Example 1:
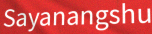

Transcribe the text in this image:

Sayanangshu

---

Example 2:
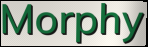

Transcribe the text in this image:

Morphy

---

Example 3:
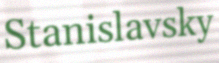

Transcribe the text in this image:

Stanislavsky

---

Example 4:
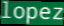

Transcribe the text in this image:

lopez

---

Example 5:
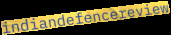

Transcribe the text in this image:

indiandefencereview